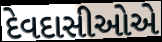
દેવદાસીઓએ